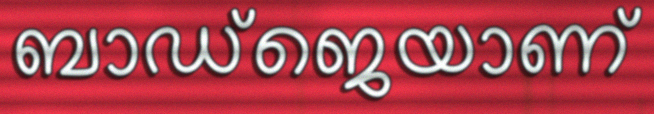
ബാഡ്ജെയാണ്